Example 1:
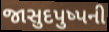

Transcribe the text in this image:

જાસુદપુષ્પની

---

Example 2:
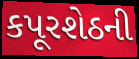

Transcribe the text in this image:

કપૂરશેઠની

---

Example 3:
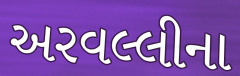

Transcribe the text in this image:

અરવલ્લીના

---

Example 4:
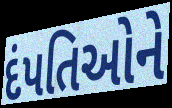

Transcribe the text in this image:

દંપતિઓને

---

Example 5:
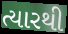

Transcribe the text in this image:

ત્યારથી